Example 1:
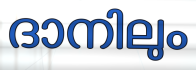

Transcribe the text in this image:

ദാനിലും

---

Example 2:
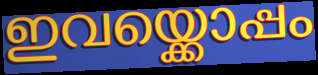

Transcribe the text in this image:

ഇവയ്ക്കൊപ്പം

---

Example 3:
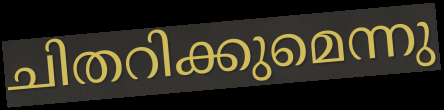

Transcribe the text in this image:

ചിതറിക്കുമെന്നു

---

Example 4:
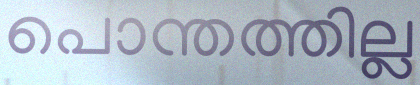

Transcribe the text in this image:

പൊന്തത്തില്ല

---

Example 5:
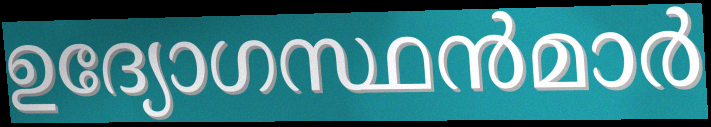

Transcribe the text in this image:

ഉദ്യോഗസ്ഥൻമാർ